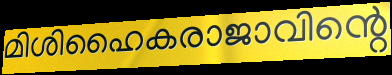
മിശിഹൈകരാജാവിന്റെ